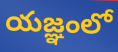
యజ్ఞంలో